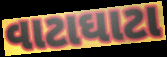
વાટાઘાટા